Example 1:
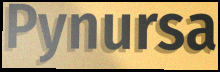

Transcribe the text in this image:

Pynursa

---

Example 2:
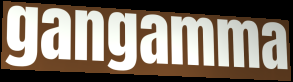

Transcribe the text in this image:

gangamma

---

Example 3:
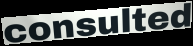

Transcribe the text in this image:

consulted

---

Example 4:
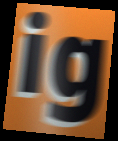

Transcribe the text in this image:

ig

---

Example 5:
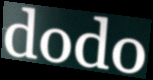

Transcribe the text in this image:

dodo